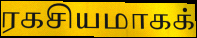
ரகசியமாகக்